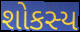
શોકસ્ય